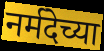
नर्मदेच्या